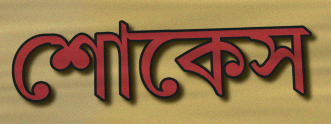
শোকেস